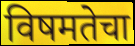
विषमतेचा